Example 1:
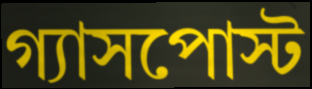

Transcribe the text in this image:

গ্যাসপোস্ট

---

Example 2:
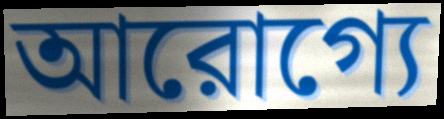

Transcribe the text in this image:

আরোগ্যে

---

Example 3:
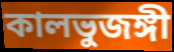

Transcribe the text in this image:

কালভুজঙ্গী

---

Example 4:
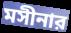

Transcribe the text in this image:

মসীনার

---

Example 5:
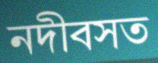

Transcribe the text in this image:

নদীবসত